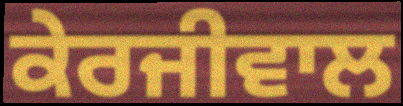
ਕੇਰਜੀਵਾਲ